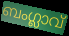
ബംഗ്ലാവ്